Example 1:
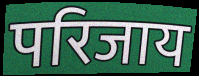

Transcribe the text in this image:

परिजाय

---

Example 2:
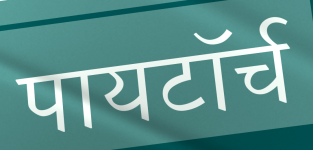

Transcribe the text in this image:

पायटॉर्च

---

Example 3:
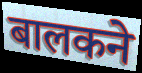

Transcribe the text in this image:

बालकने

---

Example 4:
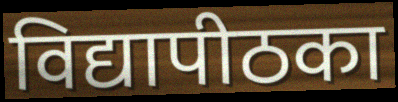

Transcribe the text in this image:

विद्यापीठका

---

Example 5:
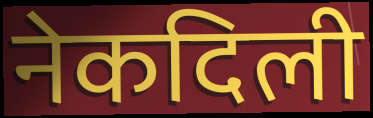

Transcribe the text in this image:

नेकदिली